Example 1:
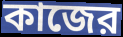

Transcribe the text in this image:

কাজের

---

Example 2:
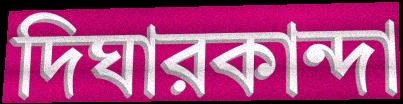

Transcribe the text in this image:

দিঘারকান্দা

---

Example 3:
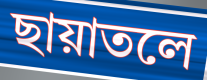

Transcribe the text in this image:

ছায়াতলে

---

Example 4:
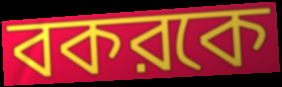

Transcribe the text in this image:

বকরকে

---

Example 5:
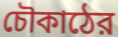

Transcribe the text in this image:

চৌকাঠের